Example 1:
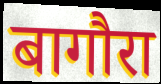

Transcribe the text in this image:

बागौरा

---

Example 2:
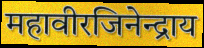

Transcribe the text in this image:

महावीरजिनेन्द्राय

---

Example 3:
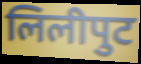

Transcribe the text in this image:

लिलीपुट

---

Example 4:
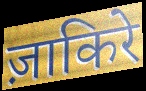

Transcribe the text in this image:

ज़ाकिरे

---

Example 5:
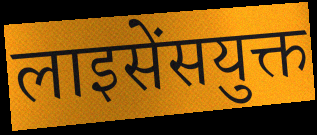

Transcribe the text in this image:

लाइसेंसयुक्त